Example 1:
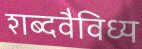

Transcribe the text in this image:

शब्दवैविध्य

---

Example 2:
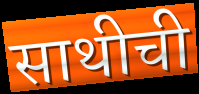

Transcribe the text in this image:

साथीची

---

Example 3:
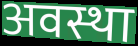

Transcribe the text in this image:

अवस्था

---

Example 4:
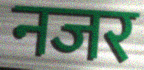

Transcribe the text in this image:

नजर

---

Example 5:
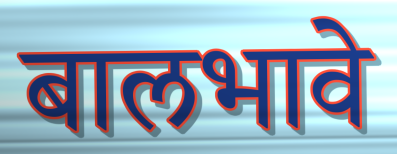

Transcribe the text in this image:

बालभावे